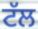
ਟੱਲ